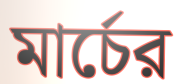
মার্চের